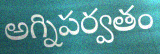
అగ్నిపర్వతం